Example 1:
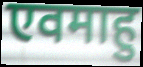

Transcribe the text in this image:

एवमाहु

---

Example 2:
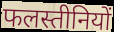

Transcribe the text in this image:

फलस्तीनियों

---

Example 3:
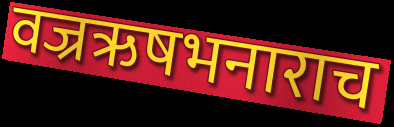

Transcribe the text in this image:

वज्रऋषभनाराच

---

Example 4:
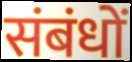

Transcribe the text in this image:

संबंधों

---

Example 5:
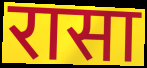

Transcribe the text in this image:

रासा